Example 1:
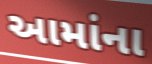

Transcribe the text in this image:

આમાંના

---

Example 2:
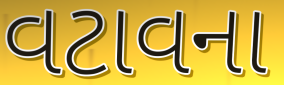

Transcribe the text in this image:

વટાવના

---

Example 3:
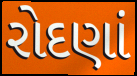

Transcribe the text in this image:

રોદણાં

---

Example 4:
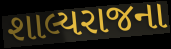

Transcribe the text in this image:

શાલ્યરાજના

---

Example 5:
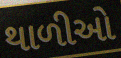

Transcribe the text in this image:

થાળીઓ